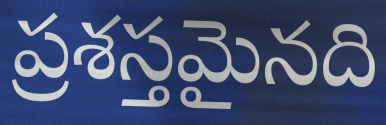
ప్రశస్తమైనది